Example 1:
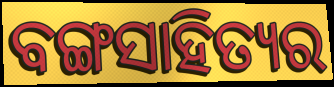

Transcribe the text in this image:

ବଙ୍ଗସାହିତ୍ୟର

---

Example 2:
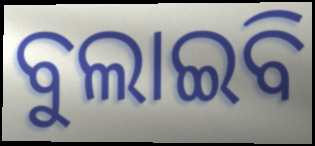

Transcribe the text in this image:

ବୁଲାଇବି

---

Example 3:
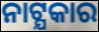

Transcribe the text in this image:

ନାଟ୍ଯକାର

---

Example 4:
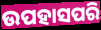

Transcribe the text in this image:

ଉପହାସପରି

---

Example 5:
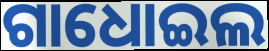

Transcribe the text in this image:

ଗାଧୋଇଲ